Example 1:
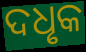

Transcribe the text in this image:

ଦଧୃକ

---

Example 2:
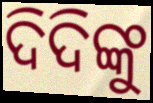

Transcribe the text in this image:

ଦିଦିଙ୍କୁ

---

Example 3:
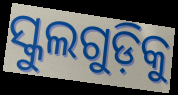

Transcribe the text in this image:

ସ୍କୁଲଗୁଡ଼ିକୁ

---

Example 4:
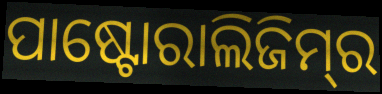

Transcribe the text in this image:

ପାଷ୍ଟୋରାଲିଜିମ୍‌ର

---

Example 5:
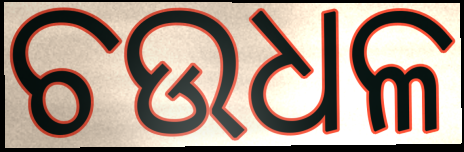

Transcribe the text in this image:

ଚଉଧଳ